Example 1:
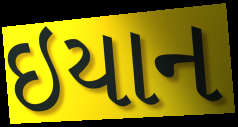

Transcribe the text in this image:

ઇયાન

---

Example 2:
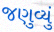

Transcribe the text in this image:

જણુવ્યું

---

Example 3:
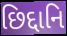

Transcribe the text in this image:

છિદ્દાનિ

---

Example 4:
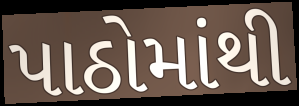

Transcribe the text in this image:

પાઠોમાંથી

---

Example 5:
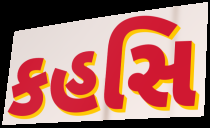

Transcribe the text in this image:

કહસિ